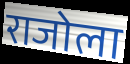
राजोला